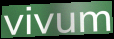
vivum